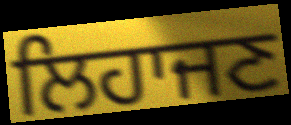
ਲਿਹਾਜਣ